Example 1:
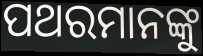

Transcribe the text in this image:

ପଥରମାନଙ୍କୁ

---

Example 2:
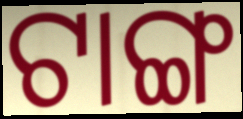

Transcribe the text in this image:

ଟାଙ୍ଗ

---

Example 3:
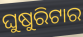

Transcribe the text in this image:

ଘୁଷୁରିଟାର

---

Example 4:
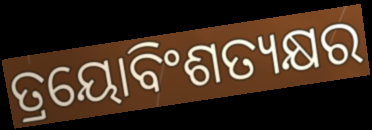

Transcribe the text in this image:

ତ୍ରୟୋବିଂଶତ୍ୟକ୍ଷର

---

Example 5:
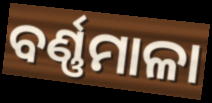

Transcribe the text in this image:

ବର୍ଣ୍ଣମାଳା